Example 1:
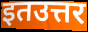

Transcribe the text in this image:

इतउत्तर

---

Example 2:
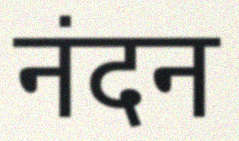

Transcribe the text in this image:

नंदन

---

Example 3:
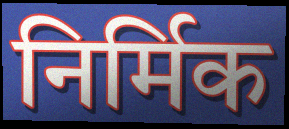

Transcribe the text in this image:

निर्मिक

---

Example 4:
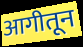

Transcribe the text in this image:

आगीतून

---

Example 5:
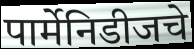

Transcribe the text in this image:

पार्मेनिडीजचे